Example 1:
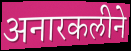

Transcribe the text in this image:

अनारकलीने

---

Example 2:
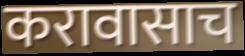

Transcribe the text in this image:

करावासाच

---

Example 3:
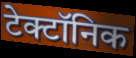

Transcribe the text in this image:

टेक्टॉनिक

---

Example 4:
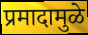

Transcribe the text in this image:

प्रमादामुळे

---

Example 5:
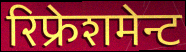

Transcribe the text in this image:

रिफ्रेशमेन्ट